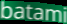
batami